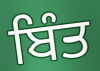
ਬਿੰਤ